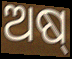
ଅଷ୍